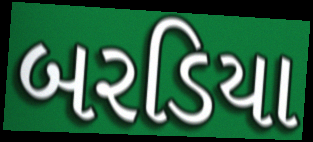
બરડિયા